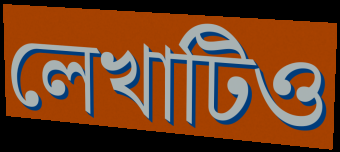
লেখাটিও